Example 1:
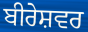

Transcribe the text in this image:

ਬੀਰੇਸ਼ਵਰ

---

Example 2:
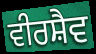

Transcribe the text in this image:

ਵੀਰਸ਼ੈਵ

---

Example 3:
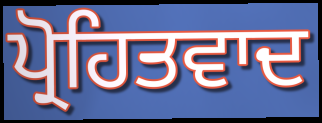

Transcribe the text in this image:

ਪ੍ਰੋਹਿਤਵਾਦ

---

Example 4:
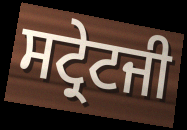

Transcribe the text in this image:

ਸਟ੍ਰੇਟਜੀ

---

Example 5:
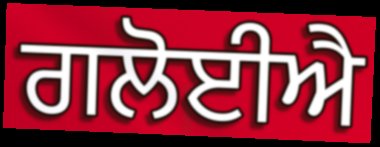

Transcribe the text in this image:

ਗਲੋਈਐ